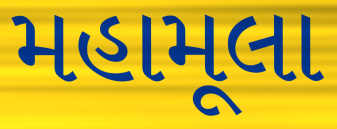
મહામૂલા